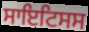
ਸਾਇਟਿਸਸ